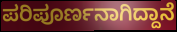
ಪರಿಪೂರ್ಣನಾಗಿದ್ದಾನೆ